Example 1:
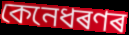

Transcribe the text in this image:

কেনেধৰণৰ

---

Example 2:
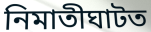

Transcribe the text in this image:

নিমাতীঘাটত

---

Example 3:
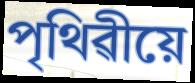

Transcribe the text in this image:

পৃথিৱীয়ে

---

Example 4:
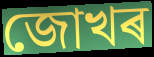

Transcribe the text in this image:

জোখৰ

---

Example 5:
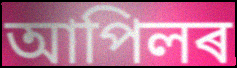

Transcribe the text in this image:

আপিলৰ